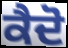
ਕੈਦੋ